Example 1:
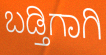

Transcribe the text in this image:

ಬಡ್ತಿಗಾಗಿ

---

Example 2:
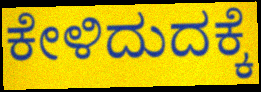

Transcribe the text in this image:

ಕೇಳಿದುದಕ್ಕೆ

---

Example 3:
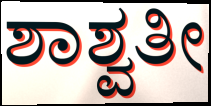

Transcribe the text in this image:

ಶಾಶ್ವತೀ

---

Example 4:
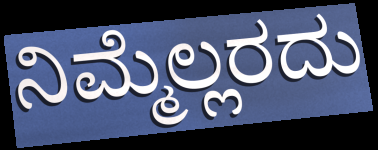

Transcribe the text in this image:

ನಿಮ್ಮೆಲ್ಲರದು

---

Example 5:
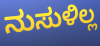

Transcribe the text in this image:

ನುಸುಳಿಲ್ಲ